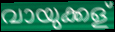
വായുക്കള്